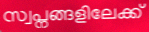
സ്വപ്നങ്ങളിലേക്ക്